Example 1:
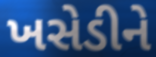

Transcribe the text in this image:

ખસેડીને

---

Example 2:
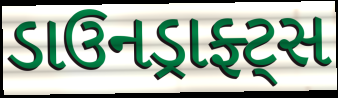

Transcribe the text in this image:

ડાઉનડ્રાફ્ટ્સ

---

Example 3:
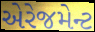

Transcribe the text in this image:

એરેજમેન્ટ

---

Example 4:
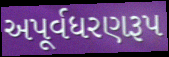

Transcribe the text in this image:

અપૂર્વધરણરૂપ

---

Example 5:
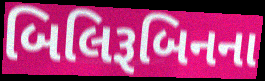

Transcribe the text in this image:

બિલિરૂબિનના